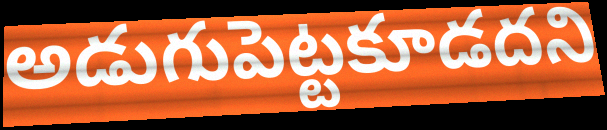
అడుగుపెట్టకూడదని